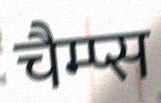
चैम्प्स